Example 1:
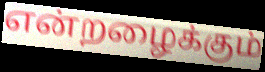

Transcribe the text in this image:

என்றழைக்கும்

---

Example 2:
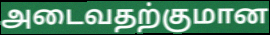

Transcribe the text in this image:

அடைவதற்குமான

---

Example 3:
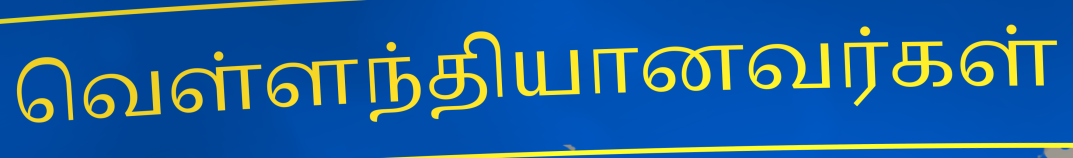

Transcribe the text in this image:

வெள்ளந்தியானவர்கள்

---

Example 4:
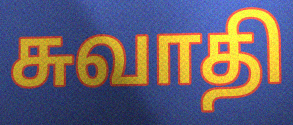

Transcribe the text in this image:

சுவாதி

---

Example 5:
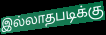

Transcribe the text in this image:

இல்லாதபடிக்கு